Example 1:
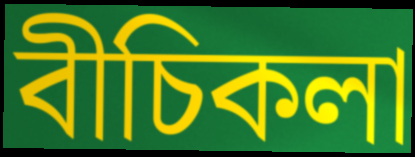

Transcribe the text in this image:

বীচিকলা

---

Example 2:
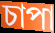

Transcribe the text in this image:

চাপা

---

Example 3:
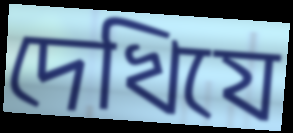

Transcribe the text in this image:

দেখিযে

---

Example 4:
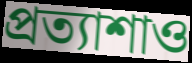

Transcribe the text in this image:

প্রত্যাশাও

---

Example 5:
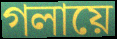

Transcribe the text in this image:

গলায়ে